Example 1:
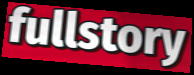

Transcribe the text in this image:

fullstory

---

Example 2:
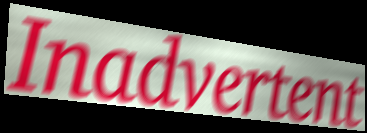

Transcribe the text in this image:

Inadvertent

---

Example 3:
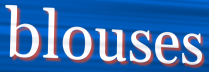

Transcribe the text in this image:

blouses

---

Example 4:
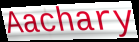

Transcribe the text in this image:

Aachary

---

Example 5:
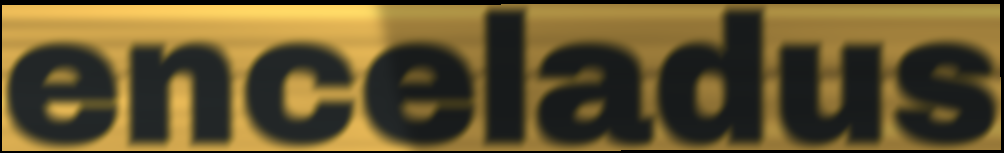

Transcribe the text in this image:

enceladus